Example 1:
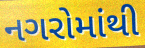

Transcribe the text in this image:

નગરોમાંથી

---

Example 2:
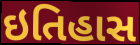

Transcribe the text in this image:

ઇતિહાસ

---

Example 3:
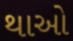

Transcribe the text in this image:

થાઓ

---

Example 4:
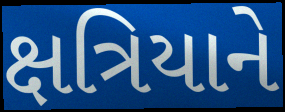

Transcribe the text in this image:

ક્ષત્રિયાને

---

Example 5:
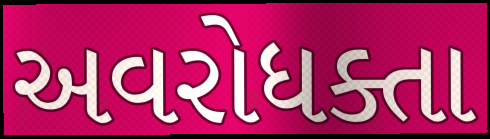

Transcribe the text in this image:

અવરોધક્તા